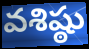
వశిష్ఠు